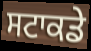
ਸਟਾਕਡੇ